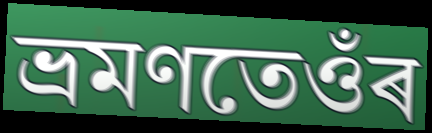
ভ্ৰমণতেওঁৰ